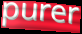
purer